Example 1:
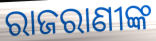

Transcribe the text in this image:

ରାଜରାଣୀଙ୍କ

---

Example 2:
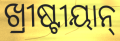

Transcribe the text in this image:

ଖ୍ରୀଷ୍ଟୀୟାନ୍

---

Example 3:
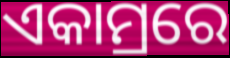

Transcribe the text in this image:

ଏକାମ୍ରରେ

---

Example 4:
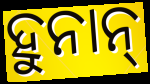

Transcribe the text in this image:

ହୁନାନ୍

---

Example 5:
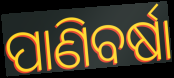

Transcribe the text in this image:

ପାଣିବର୍ଷା